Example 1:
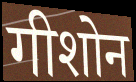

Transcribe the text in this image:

गीशोन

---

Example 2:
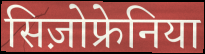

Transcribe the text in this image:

सिज़ोफ्रेनिया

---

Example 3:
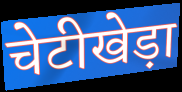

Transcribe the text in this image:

चेटीखेड़ा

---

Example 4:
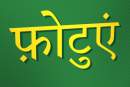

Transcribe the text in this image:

फ़ोटुएं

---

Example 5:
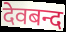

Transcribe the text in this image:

देवबन्द